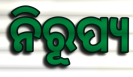
ନିରୂପ୍ୟ